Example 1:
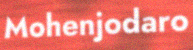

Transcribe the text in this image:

Mohenjodaro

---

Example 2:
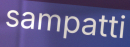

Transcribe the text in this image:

sampatti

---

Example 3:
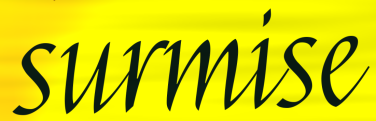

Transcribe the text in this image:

surmise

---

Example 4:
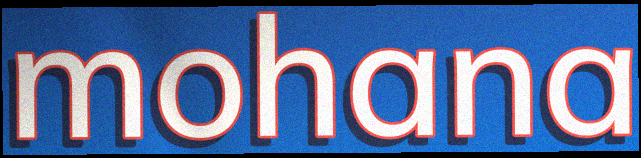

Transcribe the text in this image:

mohana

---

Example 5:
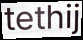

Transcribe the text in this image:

tethij